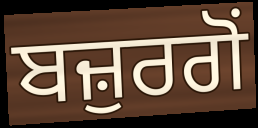
ਬਜ਼ੁਰਗੋਂ